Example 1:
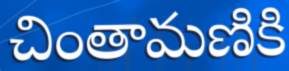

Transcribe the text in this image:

చింతామణికి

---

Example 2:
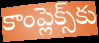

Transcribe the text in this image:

కాంప్లెక్స్‌కు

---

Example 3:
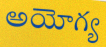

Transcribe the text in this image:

అయోగ్య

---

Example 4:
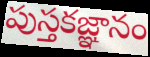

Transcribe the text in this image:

పుస్తకజ్ఞానం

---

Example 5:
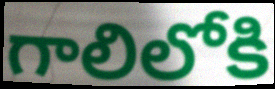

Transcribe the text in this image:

గాలిలోకి